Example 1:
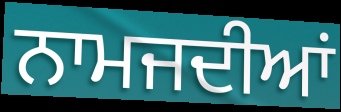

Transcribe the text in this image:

ਨਾਮਜਦੀਆਂ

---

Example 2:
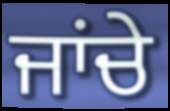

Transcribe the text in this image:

ਜਾਂਚੇ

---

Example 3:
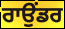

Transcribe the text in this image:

ਰਾਉਂਡਰ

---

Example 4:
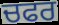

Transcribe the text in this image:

ਚਫਰ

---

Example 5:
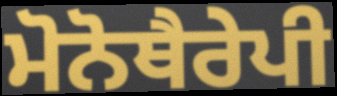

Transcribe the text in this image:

ਮੋਨੋਥੈਰੇਪੀ